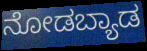
ನೋಡಬ್ಯಾಡ